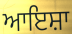
ਆਇਸ਼ਾ